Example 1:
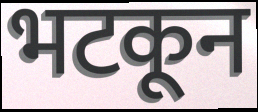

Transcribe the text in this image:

भटकून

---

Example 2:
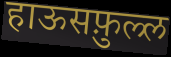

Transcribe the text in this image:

हाऊसफ़ुल्ल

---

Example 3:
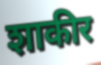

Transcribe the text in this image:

शाकीर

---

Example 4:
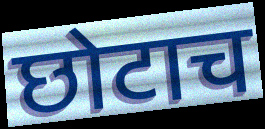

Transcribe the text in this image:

छोटाच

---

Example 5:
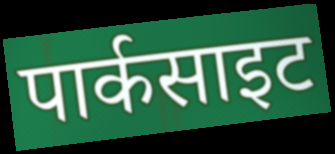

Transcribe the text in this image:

पार्कसाइट